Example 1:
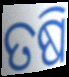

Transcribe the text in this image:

ତଷି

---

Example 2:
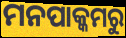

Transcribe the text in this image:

ମନପାକ୍କମରୁ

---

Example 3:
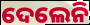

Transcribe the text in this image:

ଦେଲେନି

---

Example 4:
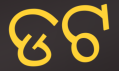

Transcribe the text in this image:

ଡଟ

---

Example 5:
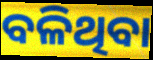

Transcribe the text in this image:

ବଳିଥିବା